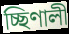
চ্ছিণালী